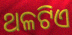
ଥଳଟିଏ